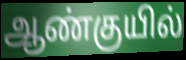
ஆண்குயில்